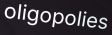
oligopolies